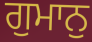
ਗੁਮਾਨੁ